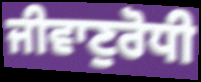
ਜੀਵਾਣੁਰੋਧੀ